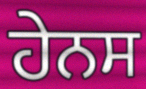
ਹੇਨਸ